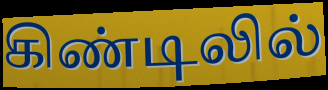
கிண்டிலில்